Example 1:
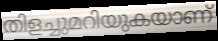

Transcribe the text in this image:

തിളച്ചുമറിയുകയാണ്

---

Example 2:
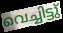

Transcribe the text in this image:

വെച്ചിട്ടു്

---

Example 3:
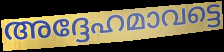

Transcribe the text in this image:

അദ്ദേഹമാവട്ടെ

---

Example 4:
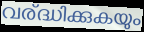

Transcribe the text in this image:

വര്ദ്ധിക്കുകയും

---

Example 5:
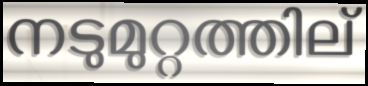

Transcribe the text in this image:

നടുമുറ്റത്തില്